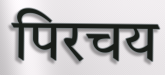
पिरचय